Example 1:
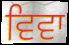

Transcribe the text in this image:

ਵਿਵਾ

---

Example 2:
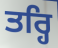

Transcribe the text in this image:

ਤਰ੍ਹਿ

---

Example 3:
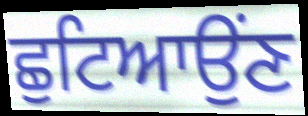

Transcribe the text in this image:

ਛੁਟਿਆਉਂਣ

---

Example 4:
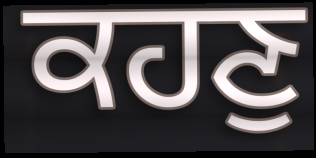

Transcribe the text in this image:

ਕਹਣੁ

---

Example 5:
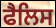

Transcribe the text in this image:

ਫੈਲਿਸ